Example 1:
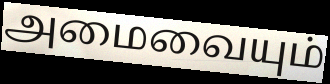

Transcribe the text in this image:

அமைவையும்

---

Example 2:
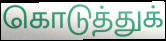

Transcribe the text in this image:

கொடுத்துக்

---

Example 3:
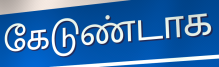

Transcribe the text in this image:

கேடுண்டாக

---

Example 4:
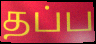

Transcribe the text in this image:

தப்ப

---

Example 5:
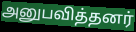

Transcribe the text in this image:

அனுபவித்தனர்